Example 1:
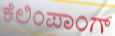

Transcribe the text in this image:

ಕೆಲಿಂಪಾಂಗ್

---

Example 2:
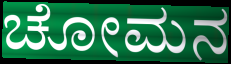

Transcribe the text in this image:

ಚೋಮನ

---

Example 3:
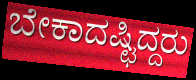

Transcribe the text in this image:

ಬೇಕಾದಷ್ಟಿದ್ದರು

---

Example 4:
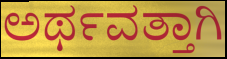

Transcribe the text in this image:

ಅರ್ಥವತ್ತಾಗಿ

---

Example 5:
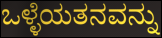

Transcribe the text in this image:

ಒಳ್ಳೆಯತನವನ್ನು